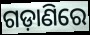
ଗଡ଼ାଣିରେ